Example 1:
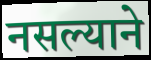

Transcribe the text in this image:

नसल्याने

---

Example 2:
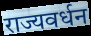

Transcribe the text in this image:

राज्‍यवर्धन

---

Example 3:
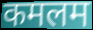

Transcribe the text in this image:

कमलम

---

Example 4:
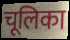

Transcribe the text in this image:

चूलिका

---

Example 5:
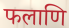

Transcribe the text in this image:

फलाणि